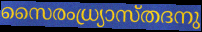
സൈരംധ്ര്യാസ്തദനു